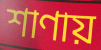
শাণায়